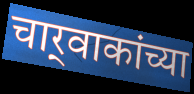
चार्वाकांच्या